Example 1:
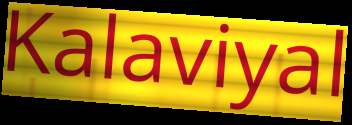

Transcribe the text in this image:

Kalaviyal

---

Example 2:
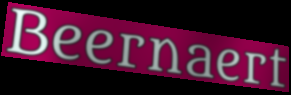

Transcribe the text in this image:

Beernaert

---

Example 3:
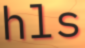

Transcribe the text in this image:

hls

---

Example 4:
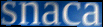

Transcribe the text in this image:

snaca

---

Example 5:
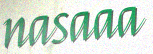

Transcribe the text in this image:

nasaaa